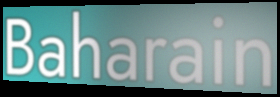
Baharain